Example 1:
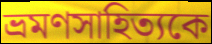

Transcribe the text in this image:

ভ্রমণসাহিত্যকে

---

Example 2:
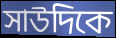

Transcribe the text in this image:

সাউদিকে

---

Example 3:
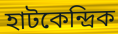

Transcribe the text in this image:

হাটকেন্দ্রিক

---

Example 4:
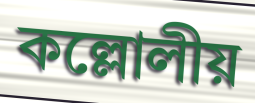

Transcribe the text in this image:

কল্লোলীয়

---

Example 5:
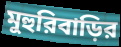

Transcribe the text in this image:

মুহুরিবাড়ির